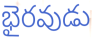
భైరవుడు